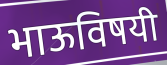
भाऊविषयी